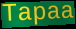
Tapaa